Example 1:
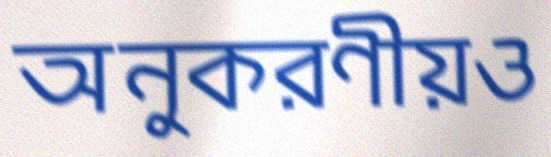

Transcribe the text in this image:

অনুকরণীয়ও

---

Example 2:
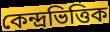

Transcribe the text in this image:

কেন্দ্রভিত্তিক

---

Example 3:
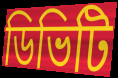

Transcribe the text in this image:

ডিভিটি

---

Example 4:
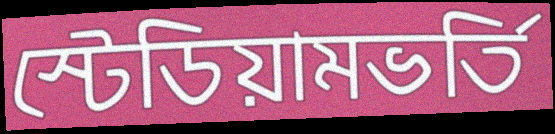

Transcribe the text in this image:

স্টেডিয়ামভর্তি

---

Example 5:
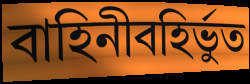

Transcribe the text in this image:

বাহিনীবহির্ভুত